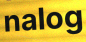
nalog